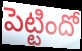
పెట్టిందో